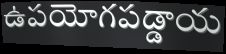
ఉపయోగపడ్డాయ